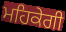
ਮਹਿਕੇਗੀ